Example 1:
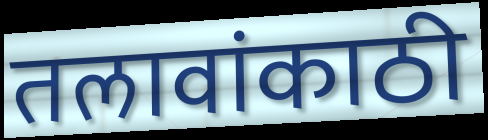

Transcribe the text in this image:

तलावांकाठी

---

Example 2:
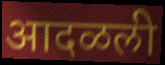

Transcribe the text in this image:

आदळली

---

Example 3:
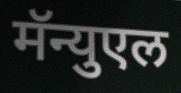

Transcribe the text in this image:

मॅन्युएल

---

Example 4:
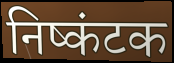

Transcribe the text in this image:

निष्कंटक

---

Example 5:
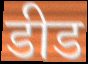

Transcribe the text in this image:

डीड